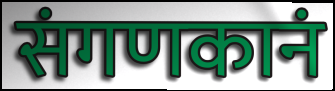
संगणकानं